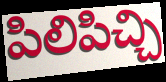
పిలిపిచ్చి